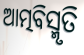
ଆତ୍ମବିସ୍ମୃତି